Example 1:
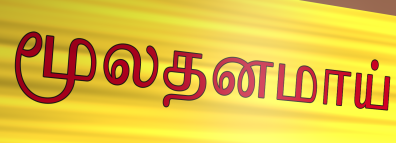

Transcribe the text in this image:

மூலதனமாய்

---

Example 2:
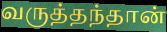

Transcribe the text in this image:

வருத்தந்தான்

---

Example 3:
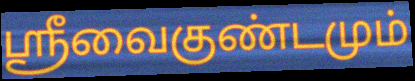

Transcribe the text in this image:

ஸ்ரீவைகுண்டமும்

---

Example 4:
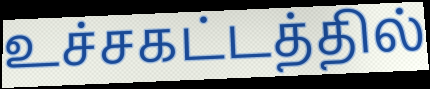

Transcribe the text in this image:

உச்சகட்டத்தில்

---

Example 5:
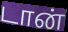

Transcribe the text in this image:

டான்